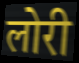
लोरी